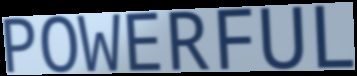
POWERFUL